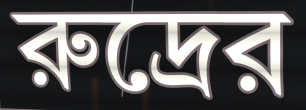
রুদ্রের